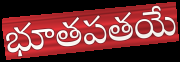
భూతపతయే